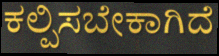
ಕಲ್ಪಿಸಬೇಕಾಗಿದೆ